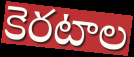
కెరటాల